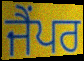
ਜੈਂਪਰ